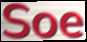
Soe